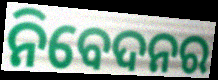
ନିବେଦନର